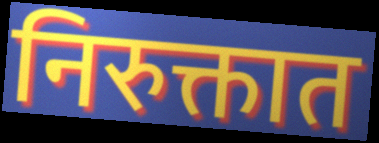
निरुक्तात